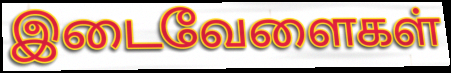
இடைவேளைகள்